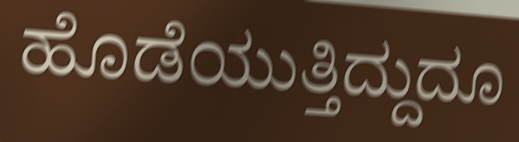
ಹೊಡೆಯುತ್ತಿದ್ದುದೂ